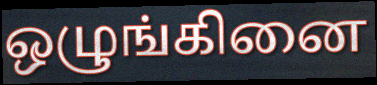
ஒழுங்கினை